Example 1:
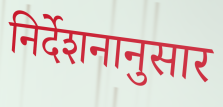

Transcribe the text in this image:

निर्देशनानुसार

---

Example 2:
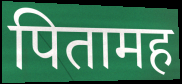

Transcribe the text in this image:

पितामह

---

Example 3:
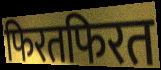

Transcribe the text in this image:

फिरतफिरत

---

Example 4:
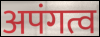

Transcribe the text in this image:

अपंगत्व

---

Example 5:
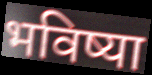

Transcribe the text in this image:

भविष्या